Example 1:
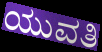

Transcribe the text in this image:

ಯುವತಿ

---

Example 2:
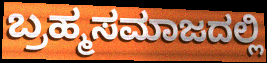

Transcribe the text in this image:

ಬ್ರಹ್ಮಸಮಾಜದಲ್ಲಿ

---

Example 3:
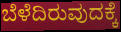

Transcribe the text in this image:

ಬೆಳೆದಿರುವುದಕ್ಕೆ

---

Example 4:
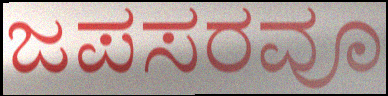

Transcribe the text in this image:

ಜಪಸರವೂ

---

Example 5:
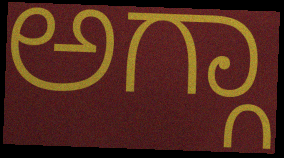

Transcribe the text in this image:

ಅಗ್ಗಾ